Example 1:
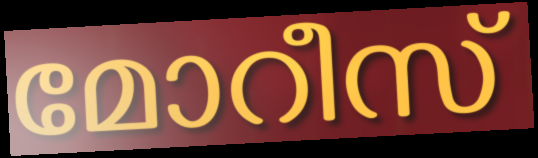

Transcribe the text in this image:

മോറീസ്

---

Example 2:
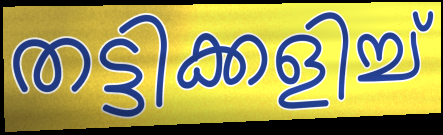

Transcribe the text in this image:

തട്ടിക്കളിച്ച്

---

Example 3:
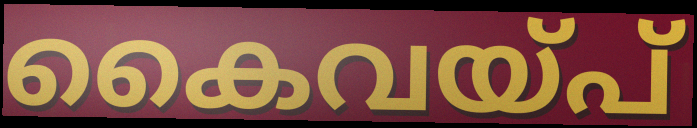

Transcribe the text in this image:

കൈവയ്പ്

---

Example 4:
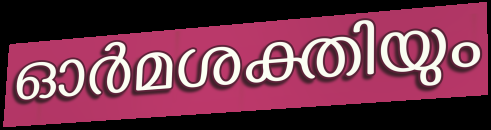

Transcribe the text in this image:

ഓർമശക്തിയും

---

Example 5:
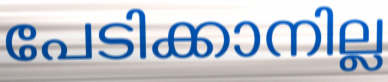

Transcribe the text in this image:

പേടിക്കാനില്ല